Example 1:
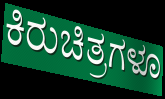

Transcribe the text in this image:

ಕಿರುಚಿತ್ರಗಳೂ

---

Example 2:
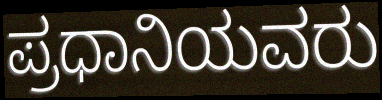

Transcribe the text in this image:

ಪ್ರಧಾನಿಯವರು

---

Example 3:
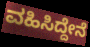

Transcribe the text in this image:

ವಹಿಸಿದ್ದೇನೆ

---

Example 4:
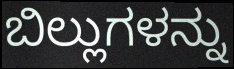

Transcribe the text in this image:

ಬಿಲ್ಲುಗಳನ್ನು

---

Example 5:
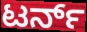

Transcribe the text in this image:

ಟರ್ನ್